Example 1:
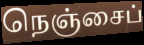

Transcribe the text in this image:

நெஞ்சைப்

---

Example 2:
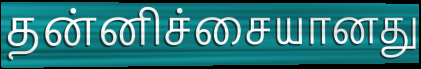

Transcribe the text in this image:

தன்னிச்சையானது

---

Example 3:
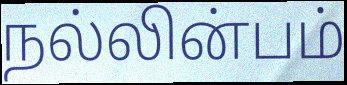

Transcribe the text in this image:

நல்லின்பம்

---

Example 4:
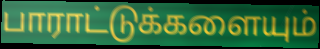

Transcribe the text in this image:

பாராட்டுக்களையும்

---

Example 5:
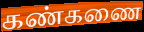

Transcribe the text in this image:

கண்கணை